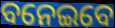
ବନେଇବେ